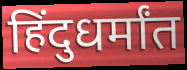
हिंदुधर्मांत